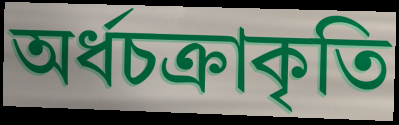
অর্ধচক্রাকৃতি